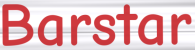
Barstar